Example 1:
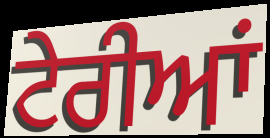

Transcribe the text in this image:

ਟੇਰੀਆਂ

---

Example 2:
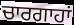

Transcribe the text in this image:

ਚਾਰਗਾਹਾਂ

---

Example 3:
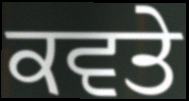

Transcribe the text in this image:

ਕਵਤੇ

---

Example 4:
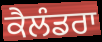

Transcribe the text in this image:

ਕੈਲੰਡਰਾ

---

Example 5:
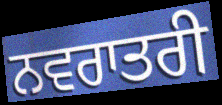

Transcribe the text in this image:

ਨਵਰਾਤਰੀ